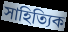
সাহিত্যিক